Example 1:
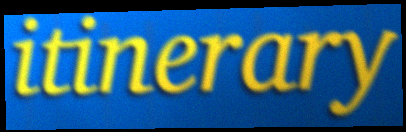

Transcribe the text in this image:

itinerary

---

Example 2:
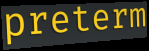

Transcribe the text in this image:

preterm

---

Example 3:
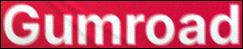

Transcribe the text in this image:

Gumroad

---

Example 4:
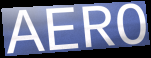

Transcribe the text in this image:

AERO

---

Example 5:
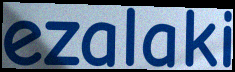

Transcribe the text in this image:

ezalaki